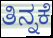
ತಿನ್ನಕೆ